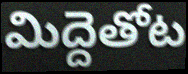
మిద్దెతోట